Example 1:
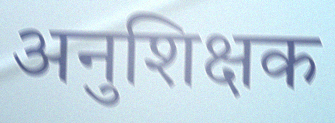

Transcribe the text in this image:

अनुशिक्षक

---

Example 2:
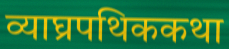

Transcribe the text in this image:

व्याघ्रपथिककथा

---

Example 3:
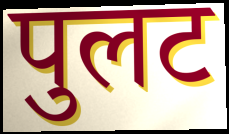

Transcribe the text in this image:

पुलट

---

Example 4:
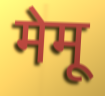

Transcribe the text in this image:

मेमू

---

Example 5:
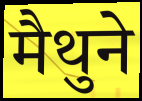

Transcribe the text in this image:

मैथुने